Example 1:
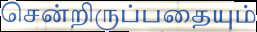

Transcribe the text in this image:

சென்றிருப்பதையும்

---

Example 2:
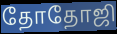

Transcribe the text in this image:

தோதோஜி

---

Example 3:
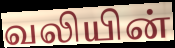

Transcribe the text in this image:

வலியின்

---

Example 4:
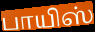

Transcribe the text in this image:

பாயிஸ்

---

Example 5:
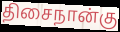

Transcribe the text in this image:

திசைநான்கு